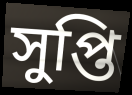
সুপ্তি